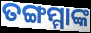
ତଙ୍ଗମ୍ମାଙ୍କ